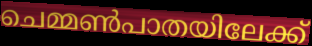
ചെമ്മൺപാതയിലേക്ക്